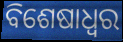
ବିଶେଷାଧ୍ଵର